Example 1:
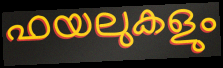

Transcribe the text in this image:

ഫയലുകളും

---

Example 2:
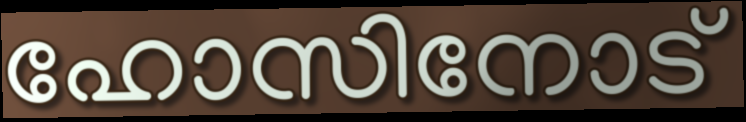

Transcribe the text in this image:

ഹോസിനോട്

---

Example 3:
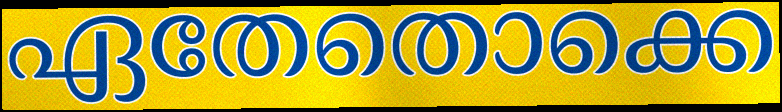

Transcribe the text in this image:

ഏതേതൊക്കെ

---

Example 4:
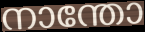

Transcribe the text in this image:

നാന്തോ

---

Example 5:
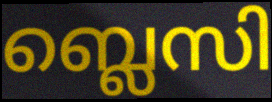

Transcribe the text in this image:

ബ്ലെസി